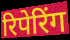
रिपेरिंग